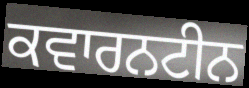
ਕਵਾਰਨਟੀਨ